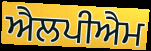
ਐਲਪੀਐਮ